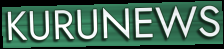
KURUNEWS